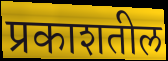
प्रकाशतील